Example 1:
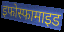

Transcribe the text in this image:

इफोस्फामाइड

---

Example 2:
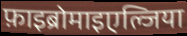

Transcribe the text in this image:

फ़ाइब्रोमाइएल्जिया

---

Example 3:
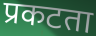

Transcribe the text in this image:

प्रकटता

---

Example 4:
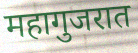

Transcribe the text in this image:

महागुजरात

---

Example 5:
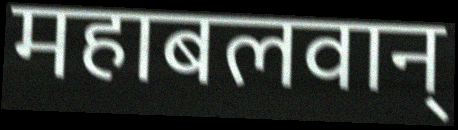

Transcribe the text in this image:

महाबलवान्